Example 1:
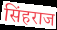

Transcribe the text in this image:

सिंहराज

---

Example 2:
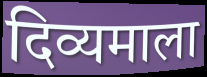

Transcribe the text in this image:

दिव्यमाला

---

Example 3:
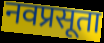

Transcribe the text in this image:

नवप्रसूता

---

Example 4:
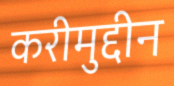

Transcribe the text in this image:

करीमुद्दीन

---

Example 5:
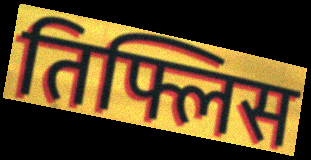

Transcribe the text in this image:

तिफ्लिस